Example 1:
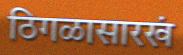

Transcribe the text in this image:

ठिगळासारखं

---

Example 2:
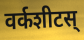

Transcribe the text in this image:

वर्कशीटस्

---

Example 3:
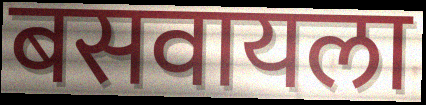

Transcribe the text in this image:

बसवायला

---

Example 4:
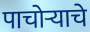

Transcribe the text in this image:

पाचोऱ्याचे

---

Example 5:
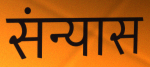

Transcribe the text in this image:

संन्यास